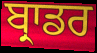
ਬ੍ਰਾਡਰ